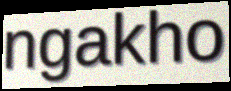
ngakho